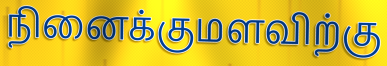
நினைக்குமளவிற்கு